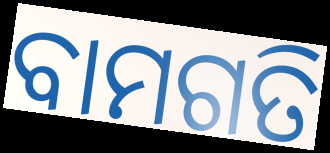
ବାମଗତି